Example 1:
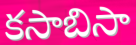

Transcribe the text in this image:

కసాబిసా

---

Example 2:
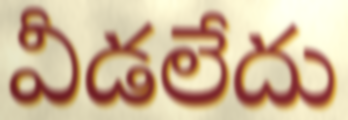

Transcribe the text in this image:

వీడలేదు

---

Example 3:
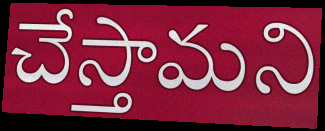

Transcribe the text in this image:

చేస్తామని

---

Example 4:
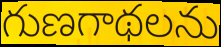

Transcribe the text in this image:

గుణగాథలను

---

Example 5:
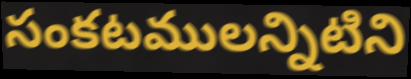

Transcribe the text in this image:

సంకటములన్నిటిని